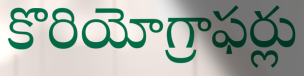
కొరియోగ్రాఫర్లు